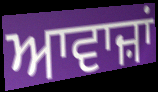
ਆਵਾਜ਼ਾਂ